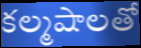
కల్మషాలతో